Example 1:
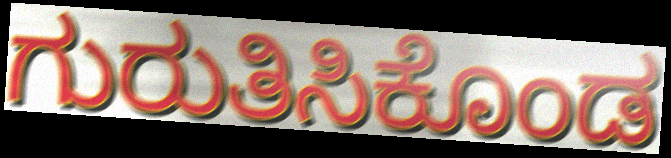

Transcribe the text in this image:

ಗುರುತಿಸಿಕೊಂಡ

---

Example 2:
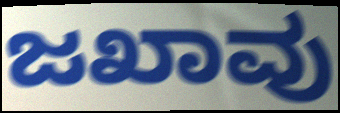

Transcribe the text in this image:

ಜಖಾವು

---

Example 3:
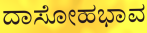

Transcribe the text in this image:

ದಾಸೋಹಭಾವ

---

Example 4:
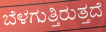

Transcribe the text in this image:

ಬೆಳಗುತ್ತಿರುತ್ತದೆ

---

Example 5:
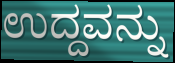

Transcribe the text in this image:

ಉದ್ದವನ್ನು